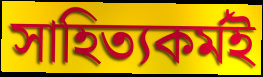
সাহিত্যকর্মই